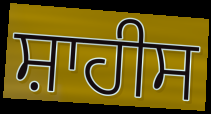
ਸ਼ਾਹੀਸ